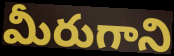
మీరుగాని